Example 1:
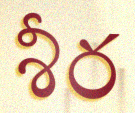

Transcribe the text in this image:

శీర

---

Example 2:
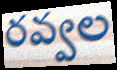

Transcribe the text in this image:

రవ్వల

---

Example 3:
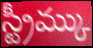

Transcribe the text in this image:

స్ట్రీమ్కు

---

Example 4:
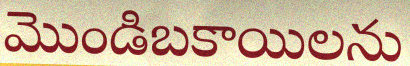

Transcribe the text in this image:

మొండిబకాయిలను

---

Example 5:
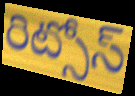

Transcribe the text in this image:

రిట్సోస్